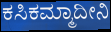
ಕಸಿಕಮ್ಮಾದೀನಿ